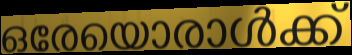
ഒരേയൊരാൾക്ക്